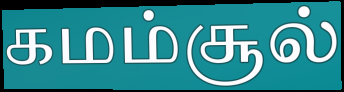
கமம்சூல்